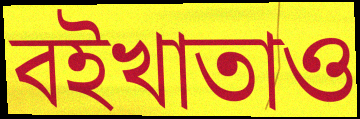
বইখাতাও